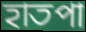
হাতপা